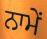
ਨਾਮੇਂ